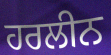
ਹਰਲੀਨ